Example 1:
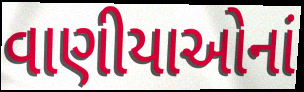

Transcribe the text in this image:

વાણીયાઓનાં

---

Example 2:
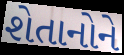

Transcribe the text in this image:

શેતાનોને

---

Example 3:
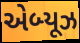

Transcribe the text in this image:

એબ્યૂઝ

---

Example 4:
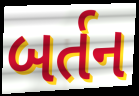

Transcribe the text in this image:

બર્તન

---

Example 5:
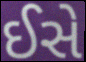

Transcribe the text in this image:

ઈસે